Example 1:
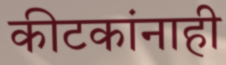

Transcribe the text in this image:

कीटकांनाही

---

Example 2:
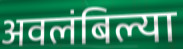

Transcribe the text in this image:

अवलंबिल्या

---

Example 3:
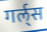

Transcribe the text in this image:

गर्ल्स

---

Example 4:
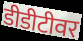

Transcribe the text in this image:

डीडीटीवर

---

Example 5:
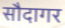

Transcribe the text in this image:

सौदागर